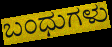
ಬಂಧುಗಳು